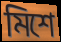
মিশে